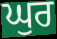
ਘੁਰ